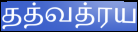
தத்வத்ரய